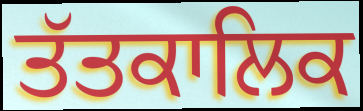
ਤੱਤਕਾਲਿਕ